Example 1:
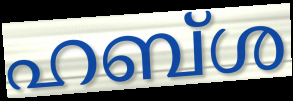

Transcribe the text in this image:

ഹബ്ശ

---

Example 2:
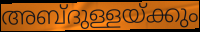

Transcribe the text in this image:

അബ്ദുള്ളയ്ക്കും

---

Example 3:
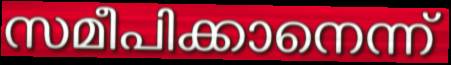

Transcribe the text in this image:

സമീപിക്കാനെന്ന്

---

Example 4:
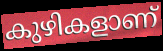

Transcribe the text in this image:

കുഴികളാണ്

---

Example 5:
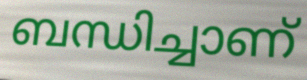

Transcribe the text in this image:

ബന്ധിച്ചാണ്